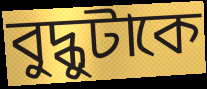
বুদ্ধুটাকে